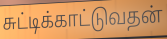
சுட்டிக்காட்டுவதன்